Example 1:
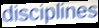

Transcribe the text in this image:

disciplines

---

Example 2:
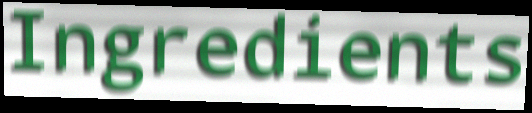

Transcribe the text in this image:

Ingredients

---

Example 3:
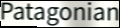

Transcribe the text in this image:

Patagonian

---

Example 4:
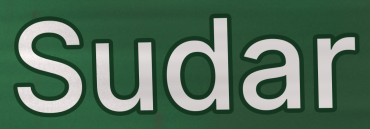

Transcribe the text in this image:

Sudar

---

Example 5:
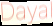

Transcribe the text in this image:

Dayal